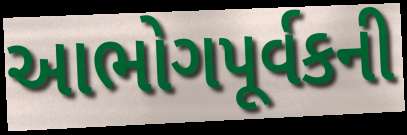
આભોગપૂર્વકની